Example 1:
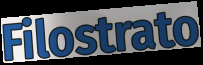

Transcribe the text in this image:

Filostrato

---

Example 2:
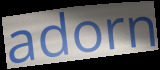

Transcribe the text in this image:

adorn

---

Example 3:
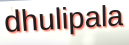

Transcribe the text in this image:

dhulipala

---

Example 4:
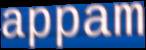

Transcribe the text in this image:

appam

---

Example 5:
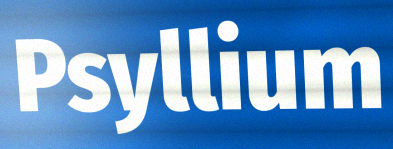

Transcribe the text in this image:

Psyllium